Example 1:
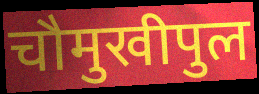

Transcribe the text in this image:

चौमुखीपुल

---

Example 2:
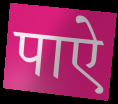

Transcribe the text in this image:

पाऐ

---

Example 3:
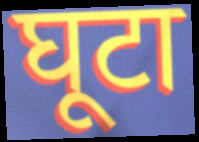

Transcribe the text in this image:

घूटा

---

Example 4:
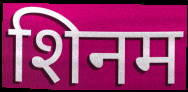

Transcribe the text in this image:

शिनम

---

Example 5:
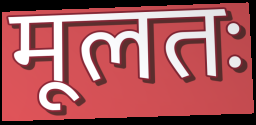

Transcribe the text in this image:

मूलतः